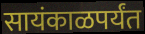
सायंकाळपर्यंत